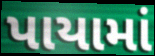
પાયામાં